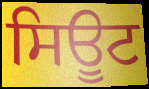
ਸਿਊਟ